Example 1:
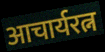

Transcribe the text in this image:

आचार्यरत्न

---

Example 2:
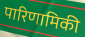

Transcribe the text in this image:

पारिणामिकी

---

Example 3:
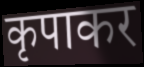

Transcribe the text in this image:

कृपाकर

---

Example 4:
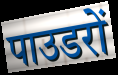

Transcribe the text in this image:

पाउडरों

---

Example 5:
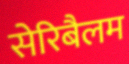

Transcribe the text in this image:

सेरिबैलम